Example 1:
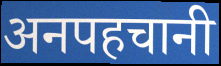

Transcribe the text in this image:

अनपहचानी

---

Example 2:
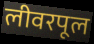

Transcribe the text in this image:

लीवरपूल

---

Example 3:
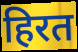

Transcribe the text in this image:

हिरत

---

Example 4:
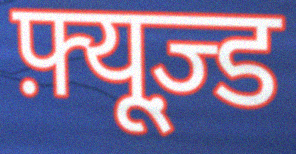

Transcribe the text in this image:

फ़्यूज़्ड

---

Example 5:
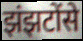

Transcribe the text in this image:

झंझटोंसे